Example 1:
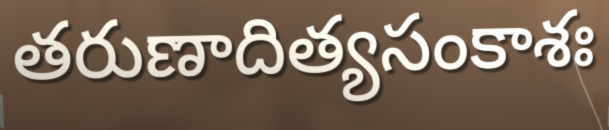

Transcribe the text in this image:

తరుణాదిత్యసంకాశః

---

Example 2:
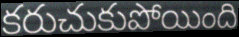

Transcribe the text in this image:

కరుచుకుపోయింది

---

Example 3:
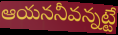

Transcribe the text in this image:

ఆయననీవన్నట్టే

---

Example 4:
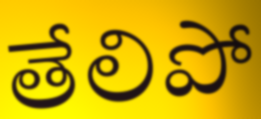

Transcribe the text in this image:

తేలిపో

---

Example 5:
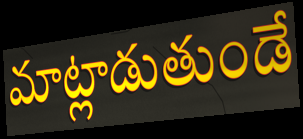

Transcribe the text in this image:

మాట్లాడుతుండే